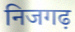
निजगढ़